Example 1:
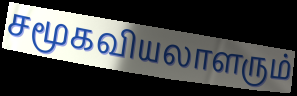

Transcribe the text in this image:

சமூகவியலாளரும்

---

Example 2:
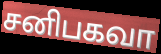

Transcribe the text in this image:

சனிபகவா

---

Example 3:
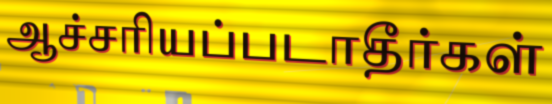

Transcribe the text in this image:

ஆச்சரியப்படாதீர்கள்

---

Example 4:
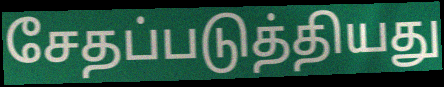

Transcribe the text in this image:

சேதப்படுத்தியது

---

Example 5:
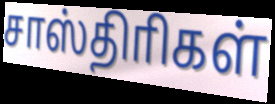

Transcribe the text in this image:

சாஸ்திரிகள்